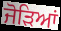
ਜੋੜਿਆਂ